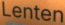
Lenten